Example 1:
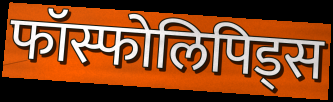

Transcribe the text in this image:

फॉस्फोलिपिड्स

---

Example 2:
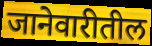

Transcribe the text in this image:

जानेवारीतील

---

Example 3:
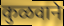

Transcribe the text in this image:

कुळवाने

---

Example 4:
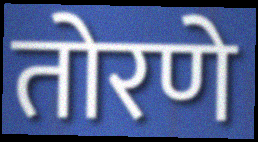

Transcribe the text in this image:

तोरणे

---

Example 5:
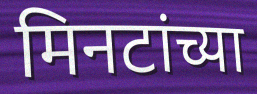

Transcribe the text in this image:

मिनटांच्या